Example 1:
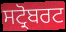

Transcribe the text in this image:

ਸਟ੍ਰੋਬਰਟ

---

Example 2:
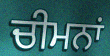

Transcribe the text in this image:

ਚੀਮਨਾਂ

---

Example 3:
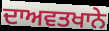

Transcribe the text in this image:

ਦਾਅਵਤਖਾਨੇ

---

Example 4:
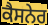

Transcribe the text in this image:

ਕੈਸਨੇਰ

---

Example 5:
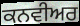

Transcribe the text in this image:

ਕਨਵੀਅਰ